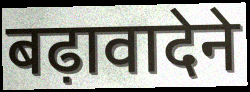
बढ़ावादेने